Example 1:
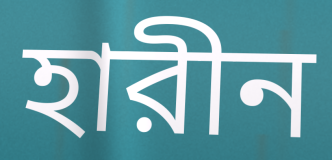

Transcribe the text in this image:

হারীন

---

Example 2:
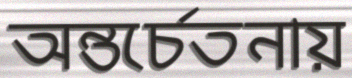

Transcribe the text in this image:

অন্তর্চেতনায়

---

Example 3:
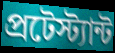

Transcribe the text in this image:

প্রটেস্ট্যান্ট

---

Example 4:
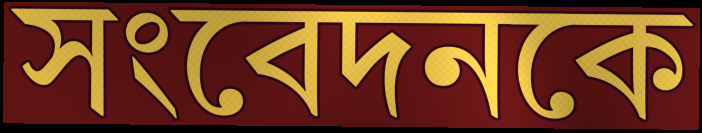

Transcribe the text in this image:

সংবেদনকে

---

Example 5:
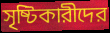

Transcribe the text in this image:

সৃষ্টিকারীদের